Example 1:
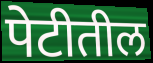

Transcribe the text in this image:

पेटीतील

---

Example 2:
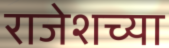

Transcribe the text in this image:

राजेशच्या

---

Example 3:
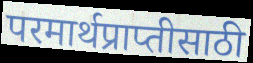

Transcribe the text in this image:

परमार्थप्राप्तीसाठी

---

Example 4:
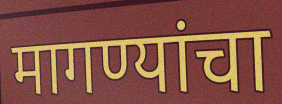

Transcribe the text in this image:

मागण्यांचा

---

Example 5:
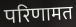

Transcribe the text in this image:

परिणामत